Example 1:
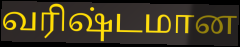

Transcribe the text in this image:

வரிஷ்டமான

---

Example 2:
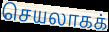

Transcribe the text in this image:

செயலாகக்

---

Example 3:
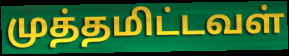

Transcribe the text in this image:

முத்தமிட்டவள்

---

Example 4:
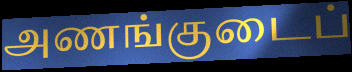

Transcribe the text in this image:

அணங்குடைப்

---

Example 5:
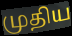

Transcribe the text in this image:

முதிய